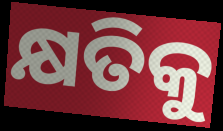
କ୍ଷତିକୁ